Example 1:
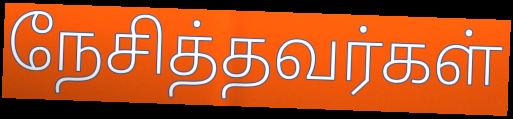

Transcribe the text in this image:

நேசித்தவர்கள்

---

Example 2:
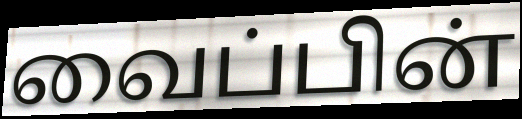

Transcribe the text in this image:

வைப்பின்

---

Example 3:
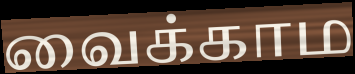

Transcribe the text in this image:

வைக்காம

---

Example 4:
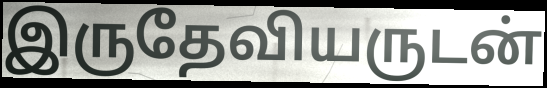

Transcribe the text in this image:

இருதேவியருடன்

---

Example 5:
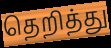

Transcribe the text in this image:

தெறித்து